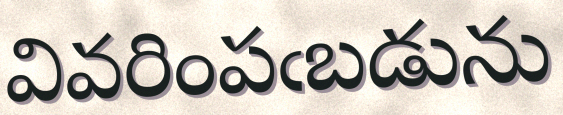
వివరింపఁబడును